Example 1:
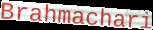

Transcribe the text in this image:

Brahmachari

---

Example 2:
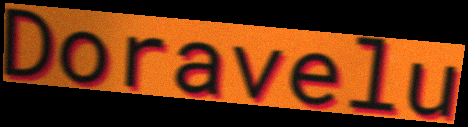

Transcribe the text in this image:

Doravelu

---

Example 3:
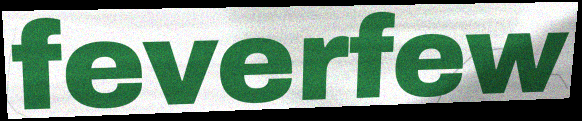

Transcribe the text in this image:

feverfew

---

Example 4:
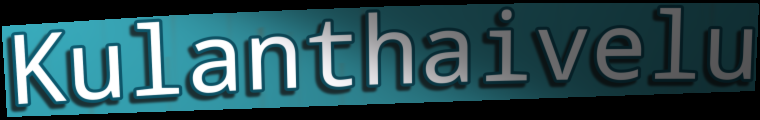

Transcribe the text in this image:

Kulanthaivelu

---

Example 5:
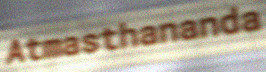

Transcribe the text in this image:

Atmasthananda